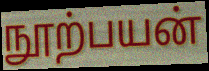
நூற்பயன்